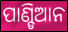
ପାଣ୍ଡିଆନ